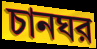
চানঘর